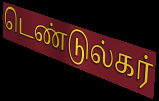
டெண்டுல்கர்